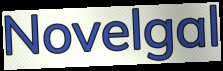
Novelgal